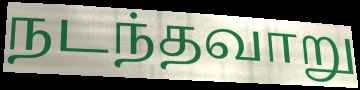
நடந்தவாறு